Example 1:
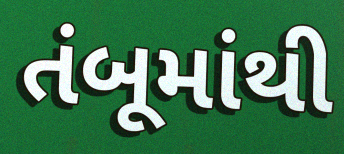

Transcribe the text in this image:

તંબૂમાંથી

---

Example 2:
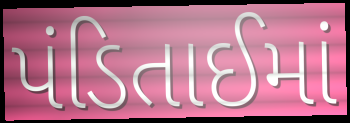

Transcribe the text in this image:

પંડિતાઈમાં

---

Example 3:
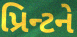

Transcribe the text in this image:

પ્રિન્ટને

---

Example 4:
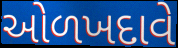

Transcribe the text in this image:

ઓળખદાવે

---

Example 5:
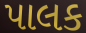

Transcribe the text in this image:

પાલક